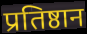
प्रतिष्ठान